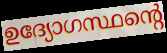
ഉദ്യോഗസ്ഥന്റെ